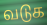
வடுக